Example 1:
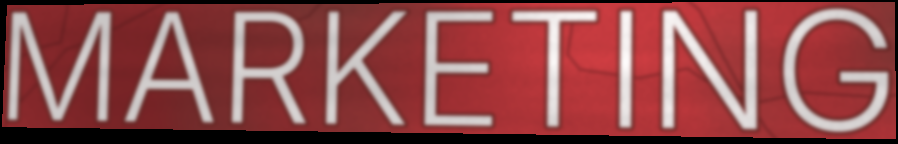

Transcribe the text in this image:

MARKETING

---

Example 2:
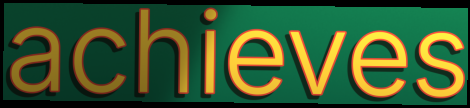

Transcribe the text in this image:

achieves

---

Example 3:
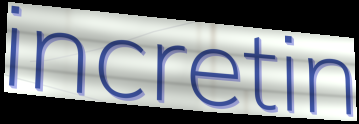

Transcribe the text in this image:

incretin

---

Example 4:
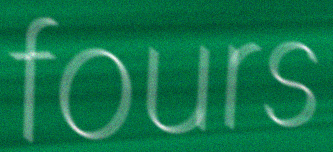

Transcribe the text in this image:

fours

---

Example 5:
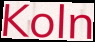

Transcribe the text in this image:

Koln